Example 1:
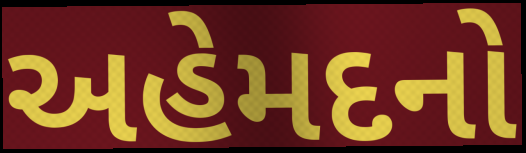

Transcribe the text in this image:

અહેમદનો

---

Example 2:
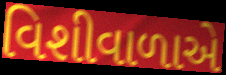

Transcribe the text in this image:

વિશીવાળાએ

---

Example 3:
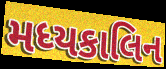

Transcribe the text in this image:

મધ્યકાલિન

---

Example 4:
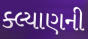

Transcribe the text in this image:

ક્લ્યાણની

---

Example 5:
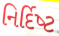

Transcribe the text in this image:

નિર્દિષ્‍ટ